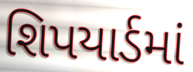
શિપયાર્ડમાં